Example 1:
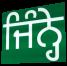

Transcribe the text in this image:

ਜਿੰਨ੍ਹੇ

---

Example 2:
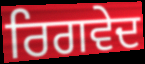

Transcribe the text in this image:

ਰਿਗਵੇਦ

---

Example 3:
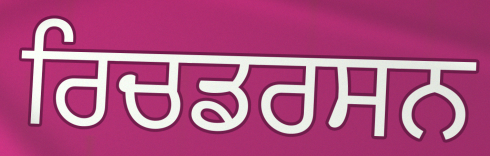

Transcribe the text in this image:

ਰਿਚਡਰਸਨ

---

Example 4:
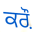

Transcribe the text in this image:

ਕਰ਼ੌ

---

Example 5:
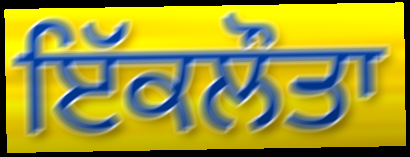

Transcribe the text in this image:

ਇੱਕਲੌਤਾ